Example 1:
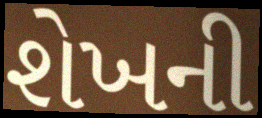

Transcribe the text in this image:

શેખની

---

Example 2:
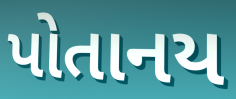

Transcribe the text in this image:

પોતાનય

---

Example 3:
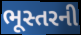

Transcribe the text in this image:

ભૂસ્તરની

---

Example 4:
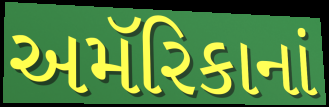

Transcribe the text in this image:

અમૅરિકાનાં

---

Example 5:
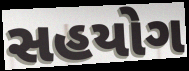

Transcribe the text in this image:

સહયોગ